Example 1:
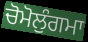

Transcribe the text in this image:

ਚੋਮੋਲੁੰਗਮਾ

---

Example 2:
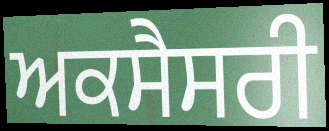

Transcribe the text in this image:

ਅਕਸੈਸਰੀ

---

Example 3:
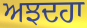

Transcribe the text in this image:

ਅਝਦਹਾ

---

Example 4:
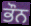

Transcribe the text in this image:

ਭੌਨ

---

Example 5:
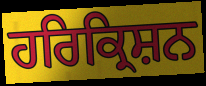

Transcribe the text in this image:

ਹਰਿਕ੍ਰਿਸ਼ਨ